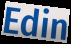
Edin